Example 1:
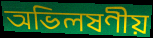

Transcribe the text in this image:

অভিলষণীয়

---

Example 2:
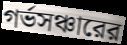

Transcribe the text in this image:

গর্ভসঞ্চারের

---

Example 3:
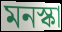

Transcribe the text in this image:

মনস্কা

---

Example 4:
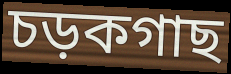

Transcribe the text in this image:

চড়কগাছ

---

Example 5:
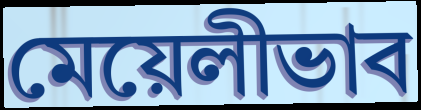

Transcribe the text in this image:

মেয়েলীভাব